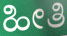
ಹೀತಿ